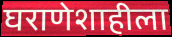
घराणेशाहीला